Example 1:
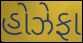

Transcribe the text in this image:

હોઝેફા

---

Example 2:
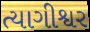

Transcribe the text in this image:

ત્યાગીશ્વર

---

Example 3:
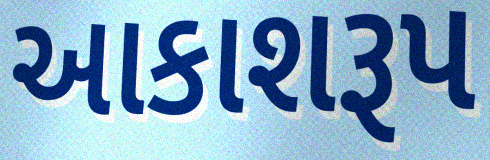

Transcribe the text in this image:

આકાશરૂપ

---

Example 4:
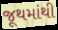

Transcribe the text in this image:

જૂથમાંથી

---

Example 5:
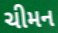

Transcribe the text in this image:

ચીમન